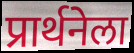
प्रार्थनेला